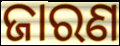
ଜାରଣ